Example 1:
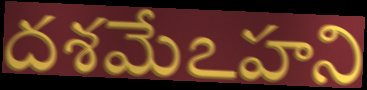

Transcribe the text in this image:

దశమేఽహని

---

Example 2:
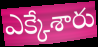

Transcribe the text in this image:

ఎక్కేశారు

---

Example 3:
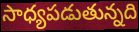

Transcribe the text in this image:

సాధ్యపడుతున్నది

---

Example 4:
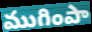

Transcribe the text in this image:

ముగింపా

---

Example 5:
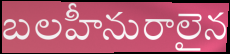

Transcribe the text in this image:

బలహీనురాలైన